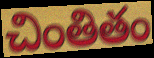
చింతితం